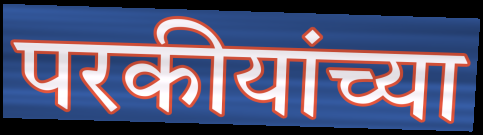
परकीयांच्या